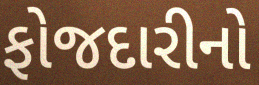
ફોજદારીનો